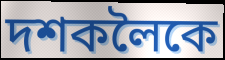
দশকলৈকে